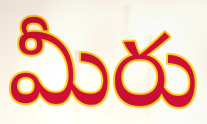
మీరు